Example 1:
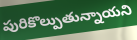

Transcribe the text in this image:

పురికొల్పుతున్నాయని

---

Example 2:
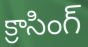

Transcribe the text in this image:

క్రాసింగ్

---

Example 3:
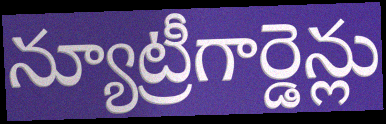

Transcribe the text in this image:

న్యూట్రీగార్డెన్లు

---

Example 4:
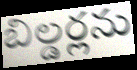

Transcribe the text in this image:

బిల్డర్లను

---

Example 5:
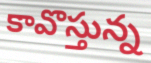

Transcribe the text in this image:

కావొస్తున్న